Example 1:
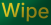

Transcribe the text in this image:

Wipe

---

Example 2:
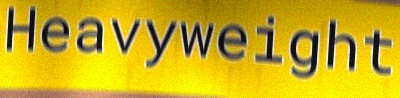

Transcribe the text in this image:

Heavyweight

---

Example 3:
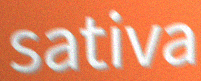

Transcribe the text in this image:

sativa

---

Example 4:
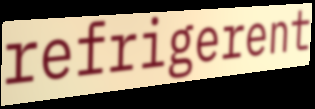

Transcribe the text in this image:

refrigerent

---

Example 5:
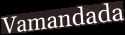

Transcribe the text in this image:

Vamandada